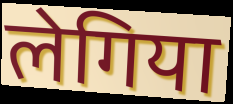
लेगिया